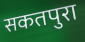
सकतपुरा